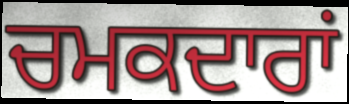
ਚਮਕਦਾਰਾਂ